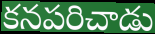
కనపరిచాడు